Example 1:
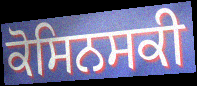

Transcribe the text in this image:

ਕੋਸਿਨਸਕੀ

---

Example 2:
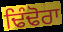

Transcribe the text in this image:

ਢਿੰਢੋਰਾ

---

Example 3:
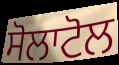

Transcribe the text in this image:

ਸੋਲਾਟੋਲ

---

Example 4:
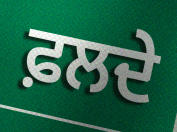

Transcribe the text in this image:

ਫ਼ਲਦੇ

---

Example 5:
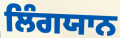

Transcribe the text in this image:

ਲਿੰਗਯਾਨ